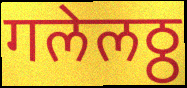
गलेलठ्ठ